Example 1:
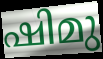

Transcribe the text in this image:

ഷിമു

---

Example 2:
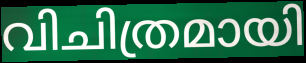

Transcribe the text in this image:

വിചിത്രമായി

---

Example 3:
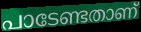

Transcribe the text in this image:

പാടേണ്ടതാണ്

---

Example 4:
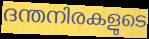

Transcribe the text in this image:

ദന്തനിരകളുടെ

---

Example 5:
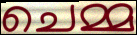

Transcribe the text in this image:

ചെമ്മ